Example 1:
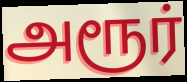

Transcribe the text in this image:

அரூர்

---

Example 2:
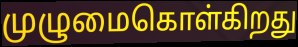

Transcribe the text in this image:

முழுமைகொள்கிறது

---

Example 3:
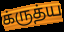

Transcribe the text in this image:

க்ருத்ய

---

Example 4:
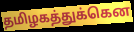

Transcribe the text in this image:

தமிழகத்துக்கென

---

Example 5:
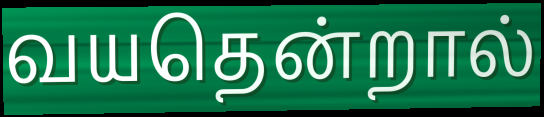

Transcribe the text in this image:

வயதென்றால்